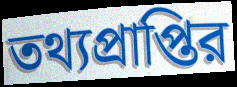
তথ্যপ্রাপ্তির